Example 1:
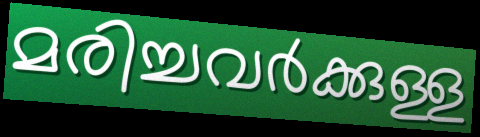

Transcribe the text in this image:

മരിച്ചവർക്കുള്ള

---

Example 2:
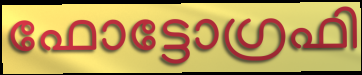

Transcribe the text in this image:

ഫോട്ടോഗ്രഫി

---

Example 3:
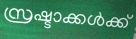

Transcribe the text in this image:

സ്രഷ്ടാക്കൾക്ക്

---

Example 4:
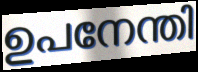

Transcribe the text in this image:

ഉപനേന്തി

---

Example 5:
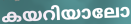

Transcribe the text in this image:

കയറിയാലോ